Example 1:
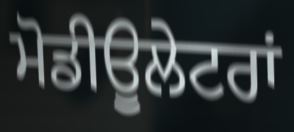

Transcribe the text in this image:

ਮੋਡੀਊਲੇਟਰਾਂ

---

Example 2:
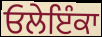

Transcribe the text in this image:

ਓਲੇਇੰਕਾ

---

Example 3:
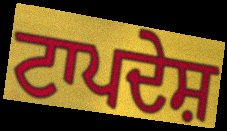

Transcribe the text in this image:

ਟਾਪਦੇਸ਼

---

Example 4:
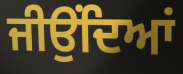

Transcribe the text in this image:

ਜੀਉਂਦਿਆਂ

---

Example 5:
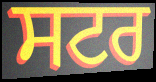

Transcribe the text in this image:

ਸਟਰ